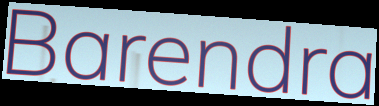
Barendra